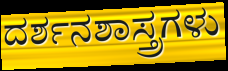
ದರ್ಶನಶಾಸ್ತ್ರಗಳು